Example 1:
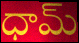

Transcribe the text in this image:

ధామ్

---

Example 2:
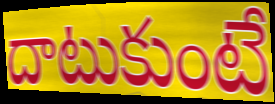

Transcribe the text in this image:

దాటుకుంటే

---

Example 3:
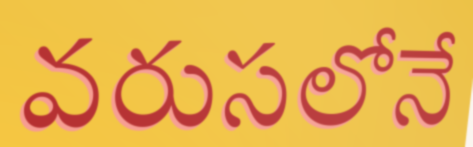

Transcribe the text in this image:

వరుసలోనే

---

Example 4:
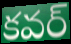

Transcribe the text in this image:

కవర్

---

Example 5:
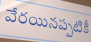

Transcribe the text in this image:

వేరయినప్పటికీ